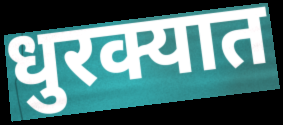
धुरक्यात